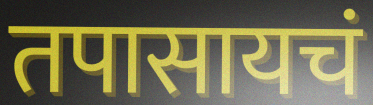
तपासायचं